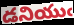
డనియుఁ